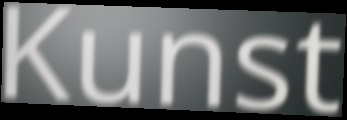
Kunst